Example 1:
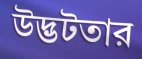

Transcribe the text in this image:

উদ্ভটতার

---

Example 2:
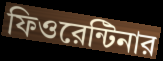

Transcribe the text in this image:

ফিওরেন্টিনার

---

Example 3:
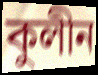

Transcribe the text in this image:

কুলীন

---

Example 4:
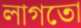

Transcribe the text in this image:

লাগতো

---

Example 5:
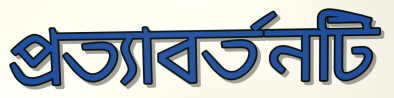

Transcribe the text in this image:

প্রত্যাবর্তনটি